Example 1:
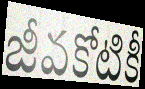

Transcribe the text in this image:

జీవకోటికీ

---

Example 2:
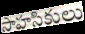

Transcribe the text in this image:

సాహసికులు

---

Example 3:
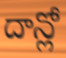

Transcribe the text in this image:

దాన్లో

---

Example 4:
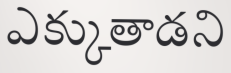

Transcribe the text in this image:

ఎక్కుతాడని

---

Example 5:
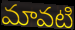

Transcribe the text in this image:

మావటి